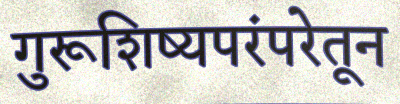
गुरूशिष्यपरंपरेतून